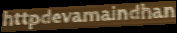
httpdevamaindhan